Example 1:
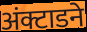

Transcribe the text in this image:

अंक्टाडने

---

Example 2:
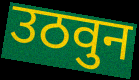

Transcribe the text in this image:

उठवुन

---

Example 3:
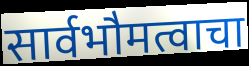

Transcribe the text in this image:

सार्वभौमत्वाचा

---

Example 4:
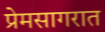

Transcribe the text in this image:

प्रेमसागरात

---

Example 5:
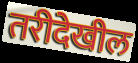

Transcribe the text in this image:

तरीदेखील